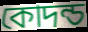
কোদন্ড